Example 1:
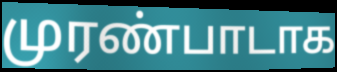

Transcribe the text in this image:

முரண்பாடாக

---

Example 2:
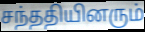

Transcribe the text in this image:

சந்ததியினரும்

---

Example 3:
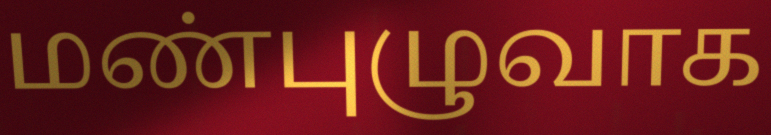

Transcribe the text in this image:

மண்புழுவாக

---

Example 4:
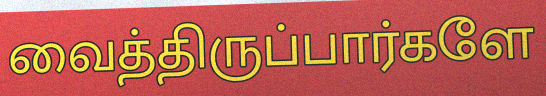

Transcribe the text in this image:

வைத்திருப்பார்களே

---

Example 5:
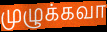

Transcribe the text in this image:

முழுக்கவா